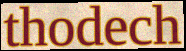
thodech